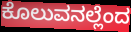
ಕೊಲುವನಲ್ಲೆಂದ